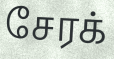
சேரக்